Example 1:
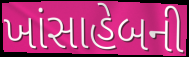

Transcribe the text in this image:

ખાંસાહેબની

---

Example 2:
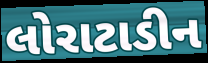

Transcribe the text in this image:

લોરાટાડીન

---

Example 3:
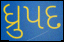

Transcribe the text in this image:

ધ્રુપદ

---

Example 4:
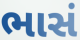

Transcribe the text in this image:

ભાસં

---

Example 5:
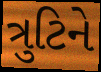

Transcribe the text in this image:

ત્રુટિને